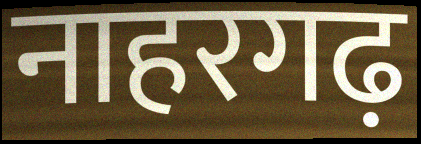
नाहरगढ़